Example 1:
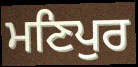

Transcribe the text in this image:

ਮਣਿਪੁਰ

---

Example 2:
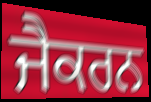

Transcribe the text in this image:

ਜੈਕਰਨ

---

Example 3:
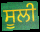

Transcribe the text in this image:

ਸੂਲੀ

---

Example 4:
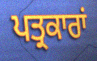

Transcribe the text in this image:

ਪਤ੍ਰਕਾਰਾਂ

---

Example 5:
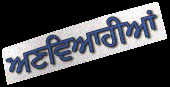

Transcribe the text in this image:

ਅਣਵਿਆਹੀਆਂ